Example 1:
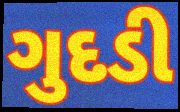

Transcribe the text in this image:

ગુદડી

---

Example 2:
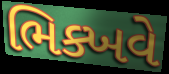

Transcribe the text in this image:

ભિક્ખવે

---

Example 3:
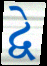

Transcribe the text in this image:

દ્વે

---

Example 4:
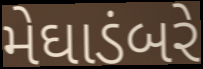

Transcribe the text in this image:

મેઘાડંબરે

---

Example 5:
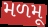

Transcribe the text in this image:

મળમૂ